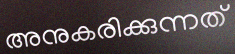
അനുകരിക്കുന്നത്